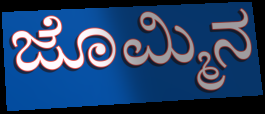
ಜೊಮ್ಮಿನ